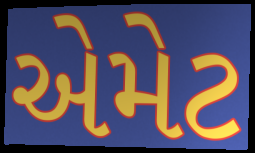
એમેટ